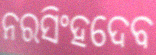
ନରସିଂହଦେବ